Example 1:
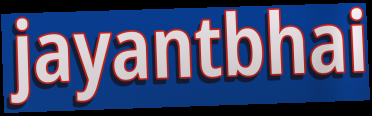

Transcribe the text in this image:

jayantbhai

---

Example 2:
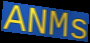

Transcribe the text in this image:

ANMs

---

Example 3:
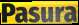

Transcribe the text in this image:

Pasura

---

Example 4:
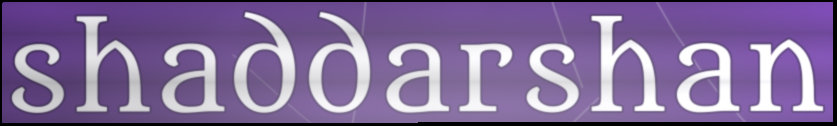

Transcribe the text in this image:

shaddarshan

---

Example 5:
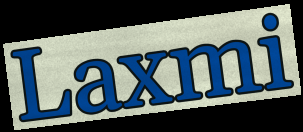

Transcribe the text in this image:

Laxmi